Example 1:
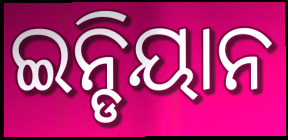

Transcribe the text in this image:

ଇନ୍ଡିୟାନ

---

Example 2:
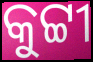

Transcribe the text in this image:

କୁଟ୍ଟୀ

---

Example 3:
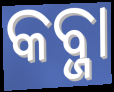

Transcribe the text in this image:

କବ୍ଜା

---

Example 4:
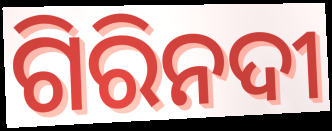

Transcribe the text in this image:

ଗିରିନଦୀ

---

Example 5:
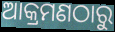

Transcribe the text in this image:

ଆକ୍ରମଣଠାରୁ